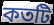
কতটি